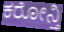
ಕರೋನ್ತಿ